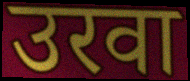
उरवा